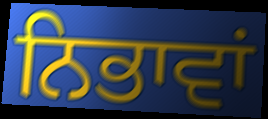
ਨਿਭਾਵਾਂ